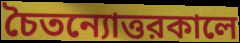
চৈতন্যোত্তরকালে